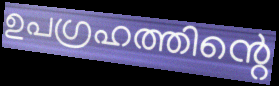
ഉപഗ്രഹത്തിന്റെ